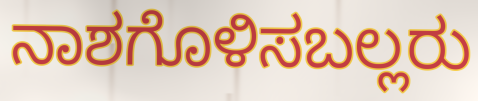
ನಾಶಗೊಳಿಸಬಲ್ಲರು